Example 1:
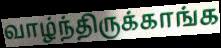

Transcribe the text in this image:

வாழ்ந்திருக்காங்க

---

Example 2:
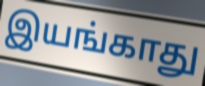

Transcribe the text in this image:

இயங்காது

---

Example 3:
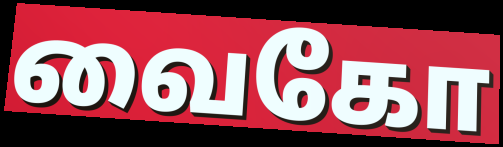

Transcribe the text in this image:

வைகோ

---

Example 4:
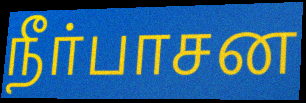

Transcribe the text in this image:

நீர்பாசன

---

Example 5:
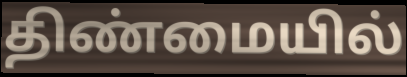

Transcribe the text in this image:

திண்மையில்